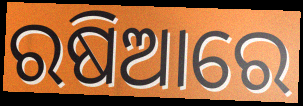
ରଷିଆରେ